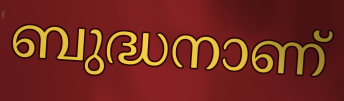
ബുദ്ധനാണ്